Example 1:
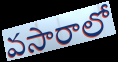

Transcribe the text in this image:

వసారాలో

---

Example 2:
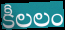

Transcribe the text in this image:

కీలలం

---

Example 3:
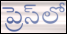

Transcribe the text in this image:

ప్రెస్‌లో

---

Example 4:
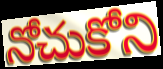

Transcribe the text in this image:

నోచుకోని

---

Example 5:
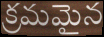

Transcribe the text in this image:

క్రమమైన